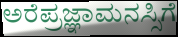
ಅರೆಪ್ರಜ್ಞಾಮನಸ್ಸಿಗೆ